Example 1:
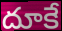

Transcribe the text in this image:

దూకే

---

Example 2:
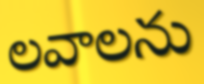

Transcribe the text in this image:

లవాలను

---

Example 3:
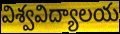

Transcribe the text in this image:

విశ్వవిద్యాలయ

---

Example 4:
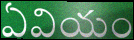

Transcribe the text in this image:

ఏవియం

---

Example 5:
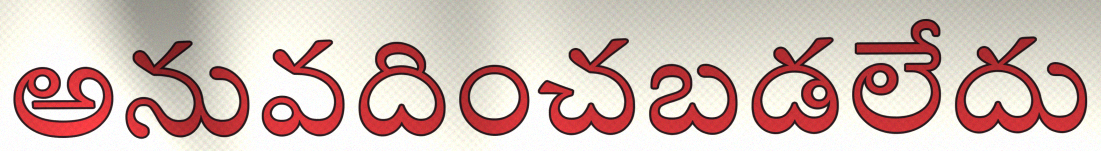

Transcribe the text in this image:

అనువదించబడలేదు